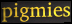
pigmies